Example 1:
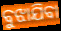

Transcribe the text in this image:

ବୁଝାଯିବା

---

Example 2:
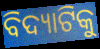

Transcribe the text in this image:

ବିଦ୍ୟାଟିକୁ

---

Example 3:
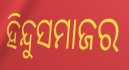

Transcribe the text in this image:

ହିନ୍ଦୁସମାଜର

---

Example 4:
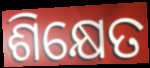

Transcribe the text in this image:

ଶିକ୍ଷେତ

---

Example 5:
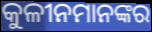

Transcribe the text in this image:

କୁଳୀନମାନଙ୍କର